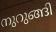
നുറുങ്ങി